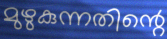
മുഴുകുന്നതിന്റെ